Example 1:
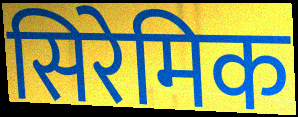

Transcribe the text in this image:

सिरेमिक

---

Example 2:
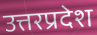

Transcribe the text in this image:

उत्तरप्रदेश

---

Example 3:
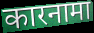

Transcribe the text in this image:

कारनामा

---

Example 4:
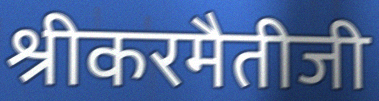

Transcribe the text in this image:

श्रीकरमैतीजी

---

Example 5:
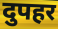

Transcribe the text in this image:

दुपहर